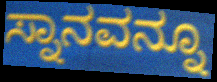
ಸ್ನಾನವನ್ನೂ